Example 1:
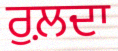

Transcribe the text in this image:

ਰੁਲ਼ਦਾ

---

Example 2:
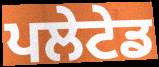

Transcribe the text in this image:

ਪਲੇਟੇਡ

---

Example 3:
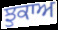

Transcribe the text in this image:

ਝੁਕਾਅ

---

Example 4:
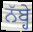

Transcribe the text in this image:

ਨੱਬ੍ਹੇ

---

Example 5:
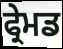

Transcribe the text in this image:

ਫ੍ਰੇਮਡ